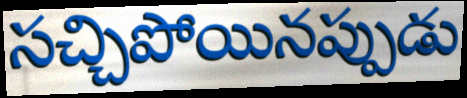
సచ్చిపోయినప్పుడు